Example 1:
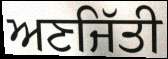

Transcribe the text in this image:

ਅਣਜਿੱਤੀ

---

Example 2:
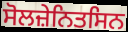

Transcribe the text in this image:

ਸੋਲਜ਼ੇਨਿਤਸਿਨ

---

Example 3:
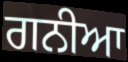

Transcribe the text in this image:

ਗਨੀਆ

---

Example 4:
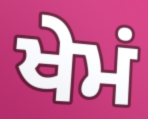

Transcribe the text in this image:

ਖੇਮਂ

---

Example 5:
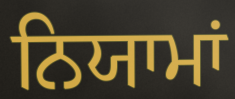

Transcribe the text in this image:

ਨਿਯਾਮਾਂ